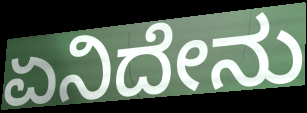
ಏನಿದೇನು